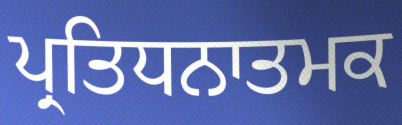
ਪ੍ਰਤਿਧਨਾਤਮਕ